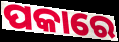
ପକାରେ